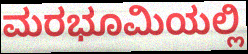
ಮರಭೂಮಿಯಲ್ಲಿ